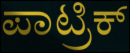
ಪಾಟ್ರಿಕ್